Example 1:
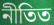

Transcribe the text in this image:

নীতিত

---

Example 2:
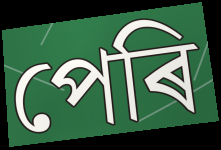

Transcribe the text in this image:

পেৰি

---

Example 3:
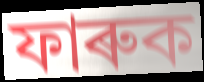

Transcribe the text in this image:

ফাৰুক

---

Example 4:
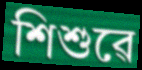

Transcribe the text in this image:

শিশুৱে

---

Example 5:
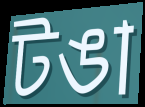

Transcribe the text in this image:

টঙা